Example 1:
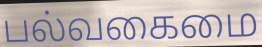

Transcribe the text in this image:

பல்வகைமை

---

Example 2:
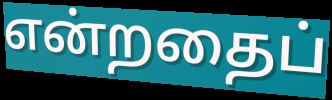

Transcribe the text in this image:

என்றதைப்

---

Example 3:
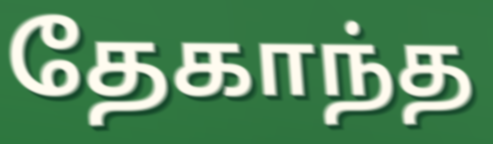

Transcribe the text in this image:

தேகாந்த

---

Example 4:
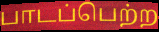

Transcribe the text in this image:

பாடப்பெற்ற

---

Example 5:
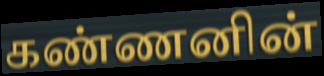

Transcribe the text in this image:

கண்ணனின்